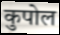
कुपोल